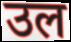
उल